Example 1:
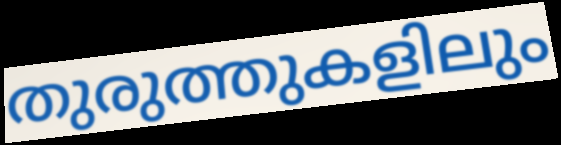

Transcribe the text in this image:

തുരുത്തുകളിലും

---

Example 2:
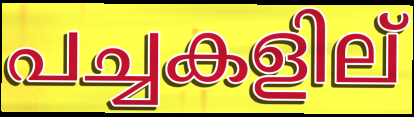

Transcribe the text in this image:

പച്ചകളില്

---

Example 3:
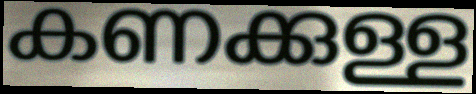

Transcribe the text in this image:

കണക്കുള്ള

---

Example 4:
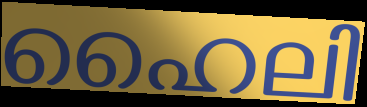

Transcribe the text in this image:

ഹൈലി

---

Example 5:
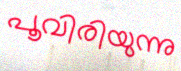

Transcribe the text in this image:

പൂവിരിയുന്നു